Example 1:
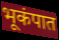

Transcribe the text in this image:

भूकंपात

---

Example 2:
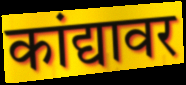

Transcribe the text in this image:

कांद्यावर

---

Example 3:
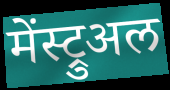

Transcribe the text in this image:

मेंस्ट्रुअल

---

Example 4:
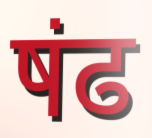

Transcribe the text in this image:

षंढ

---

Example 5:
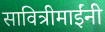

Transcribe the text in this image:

सावित्रीमाईंनी